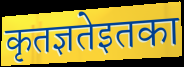
कृतज्ञतेइतका